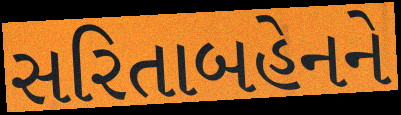
સરિતાબહેનને